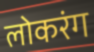
लोकरंग